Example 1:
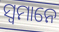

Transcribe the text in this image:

ସ୍ୱମାନେ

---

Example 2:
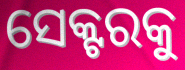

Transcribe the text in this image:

ସେକ୍ଟରକୁ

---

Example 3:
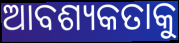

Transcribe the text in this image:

ଆବଶ୍ୟକତାକୁ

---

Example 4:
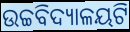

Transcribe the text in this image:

ଉଚ୍ଚବିଦ୍ୟାଳୟଟି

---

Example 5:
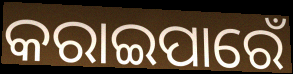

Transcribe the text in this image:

କରାଇପାରେଁ